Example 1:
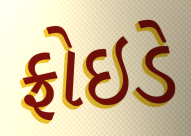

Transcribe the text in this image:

ફ્રોઇડે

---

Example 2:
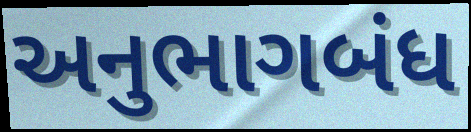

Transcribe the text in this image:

અનુભાગબંધ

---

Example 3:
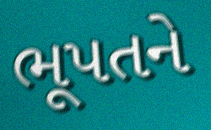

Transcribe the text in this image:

ભૂપતને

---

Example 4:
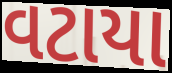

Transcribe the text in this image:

વટાયા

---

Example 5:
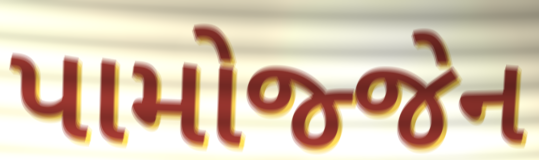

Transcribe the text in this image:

પામોજ્જેન